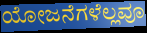
ಯೋಜನೆಗಳೆಲ್ಲವೂ